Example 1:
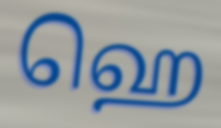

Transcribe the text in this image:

ஹெ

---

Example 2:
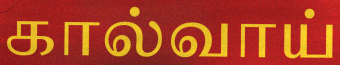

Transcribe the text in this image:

கால்வாய்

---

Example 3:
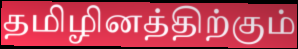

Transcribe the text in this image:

தமிழினத்திற்கும்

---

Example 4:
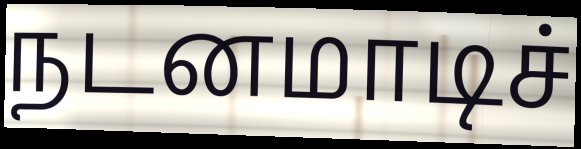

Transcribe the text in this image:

நடனமாடிச்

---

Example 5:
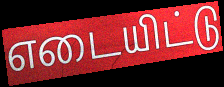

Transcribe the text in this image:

எடையிட்டு